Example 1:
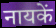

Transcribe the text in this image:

नायकें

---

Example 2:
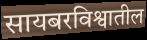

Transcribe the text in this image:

सायबरविश्वातील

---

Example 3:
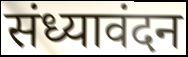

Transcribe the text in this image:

संध्यावंदन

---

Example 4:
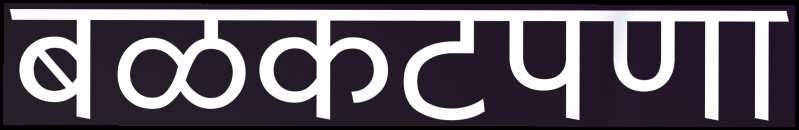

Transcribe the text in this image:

बळकटपणा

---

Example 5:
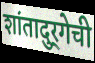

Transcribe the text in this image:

शांतादुर्गेची